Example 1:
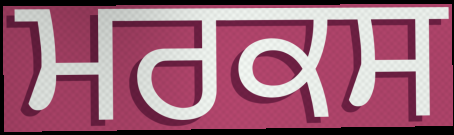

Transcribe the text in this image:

ਮਰਕਸ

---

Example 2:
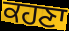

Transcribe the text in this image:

ਕਹਣਾ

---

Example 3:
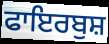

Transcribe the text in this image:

ਫਾਇਰਬੁਸ਼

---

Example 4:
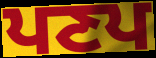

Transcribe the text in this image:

ਪਣਪ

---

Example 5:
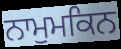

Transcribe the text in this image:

ਨਾਮੁਮਕਿਨ